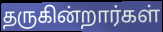
தருகின்றார்கள்